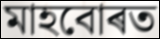
মাহবোৰত